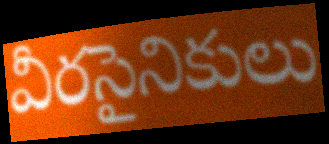
వీరసైనికులు